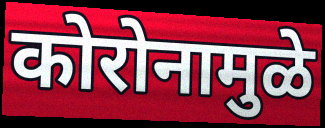
कोरोनामुळे